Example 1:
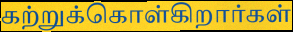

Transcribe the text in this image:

கற்றுக்கொள்கிறார்கள்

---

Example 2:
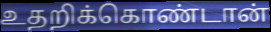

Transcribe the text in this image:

உதறிக்கொண்டான்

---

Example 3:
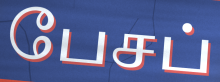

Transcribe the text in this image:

பேசப்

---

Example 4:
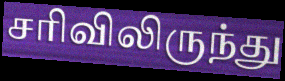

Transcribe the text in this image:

சரிவிலிருந்து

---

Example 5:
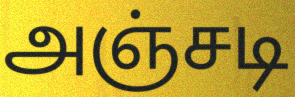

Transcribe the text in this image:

அஞ்சடி